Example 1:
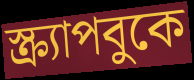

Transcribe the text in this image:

স্ক্র্যাপবুকে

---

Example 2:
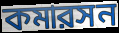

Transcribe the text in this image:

কমারসন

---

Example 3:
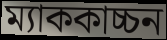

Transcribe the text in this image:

ম্যাককাচ্চন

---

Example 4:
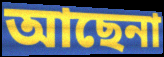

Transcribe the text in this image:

আছেনা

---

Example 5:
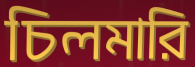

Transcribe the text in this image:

চিলমারি